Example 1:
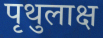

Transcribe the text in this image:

पृथुलाक्ष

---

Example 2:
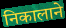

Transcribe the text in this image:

निकालाने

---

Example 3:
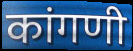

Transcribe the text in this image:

कांगणी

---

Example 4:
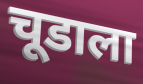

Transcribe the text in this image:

चूडाला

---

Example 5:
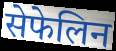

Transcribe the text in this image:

सेफेलिन